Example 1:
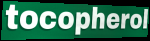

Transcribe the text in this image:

tocopherol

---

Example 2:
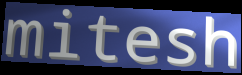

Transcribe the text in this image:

mitesh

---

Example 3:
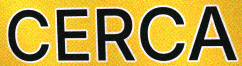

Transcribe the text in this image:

CERCA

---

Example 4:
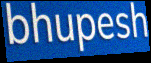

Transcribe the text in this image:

bhupesh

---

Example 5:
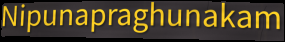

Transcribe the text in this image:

Nipunapraghunakam